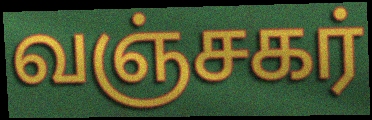
வஞ்சகர்